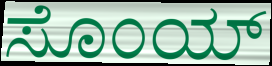
ಸೊಂಯ್